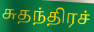
சுதந்திரச்